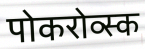
पोकरोव्स्क